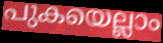
പുകയെല്ലാം